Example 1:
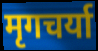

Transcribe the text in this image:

मृगचर्या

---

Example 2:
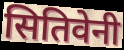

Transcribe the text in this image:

सितिवेनी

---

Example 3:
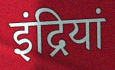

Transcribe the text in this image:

इंद्रियां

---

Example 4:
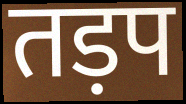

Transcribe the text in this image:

तड़प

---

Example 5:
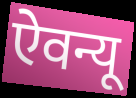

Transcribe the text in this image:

ऐवन्यू